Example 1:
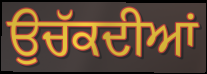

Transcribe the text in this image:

ਉਚੱਕਦੀਆਂ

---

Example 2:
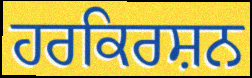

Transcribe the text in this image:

ਹਰਕਿਰਸ਼ਨ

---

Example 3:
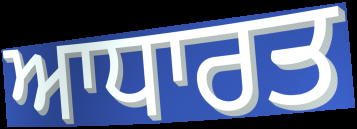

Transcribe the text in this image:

ਆਧਾਰਤ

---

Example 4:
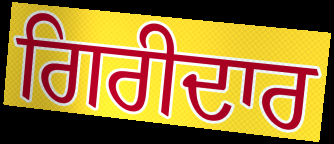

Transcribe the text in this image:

ਗਿਰੀਦਾਰ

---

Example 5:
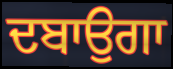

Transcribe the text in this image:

ਦਬਾਉਗਾ